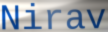
Nirav